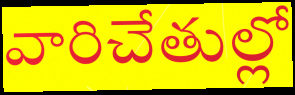
వారిచేతుల్లో